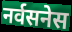
नर्वसनेस